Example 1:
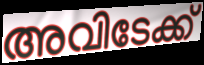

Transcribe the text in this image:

അവിടേക്ക്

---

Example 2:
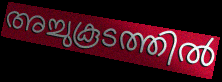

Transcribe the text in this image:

അച്ചുകൂടത്തിൽ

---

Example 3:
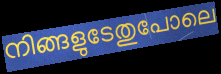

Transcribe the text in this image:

നിങ്ങളുടേതുപോലെ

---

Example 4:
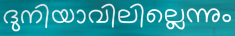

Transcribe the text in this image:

ദുനിയാവിലില്ലെന്നും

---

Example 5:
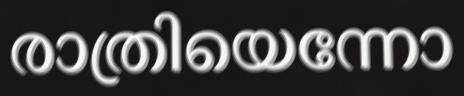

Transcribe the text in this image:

രാത്രിയെന്നോ